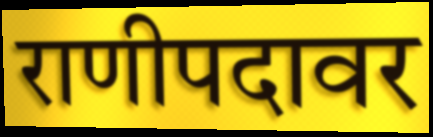
राणीपदावर